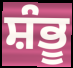
ਸ਼ੰਭੂ